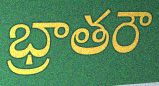
భ్రాతరౌ